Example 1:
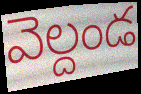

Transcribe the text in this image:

వెల్దండ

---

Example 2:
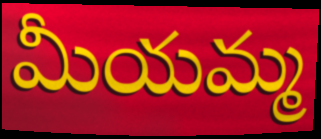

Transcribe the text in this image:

మీయమ్మ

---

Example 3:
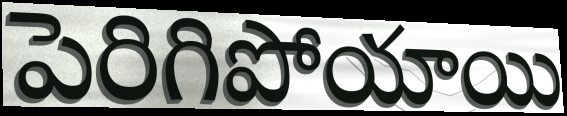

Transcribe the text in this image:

పెరిగిపోయాయి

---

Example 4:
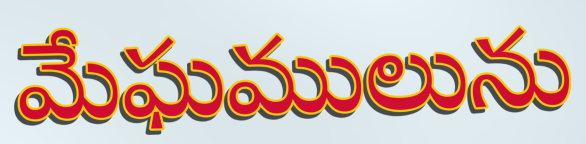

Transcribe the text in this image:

మేఘములును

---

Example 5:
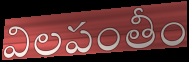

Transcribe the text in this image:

విలపంతీం